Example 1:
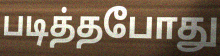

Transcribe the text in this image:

படித்தபோது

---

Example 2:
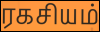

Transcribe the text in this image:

ரகசியம்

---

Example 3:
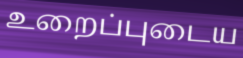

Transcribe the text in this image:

உறைப்புடைய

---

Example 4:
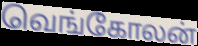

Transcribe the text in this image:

வெங்கோலன்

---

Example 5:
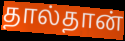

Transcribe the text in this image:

தால்தான்